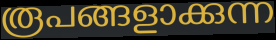
രൂപങ്ങളാക്കുന്ന